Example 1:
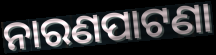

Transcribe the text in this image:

ନାରଣପାଟଣା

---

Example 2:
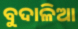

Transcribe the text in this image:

ବୁଦାଳିଆ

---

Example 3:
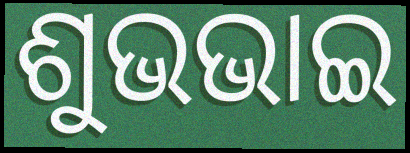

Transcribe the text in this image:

ଶୁଭଭାଇ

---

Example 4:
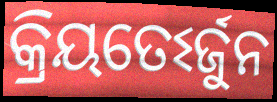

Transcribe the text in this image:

କ୍ରିୟତେଽର୍ଜୁନ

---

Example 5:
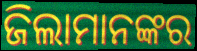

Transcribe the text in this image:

ଜିଲାମାନଙ୍କର